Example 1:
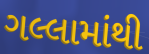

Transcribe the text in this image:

ગલ્લામાંથી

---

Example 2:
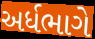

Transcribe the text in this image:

અર્ધભાગે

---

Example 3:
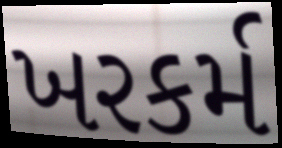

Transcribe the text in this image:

ખરકર્મ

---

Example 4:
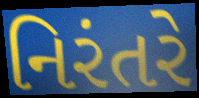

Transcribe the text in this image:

નિરંતરે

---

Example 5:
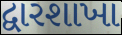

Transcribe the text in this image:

દ્વારશાખા